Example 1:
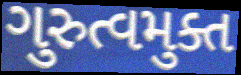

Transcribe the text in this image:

ગુરુત્વમુક્ત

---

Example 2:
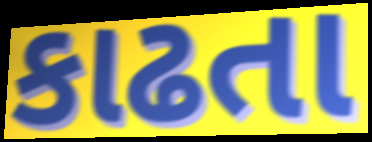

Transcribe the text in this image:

કાઢતા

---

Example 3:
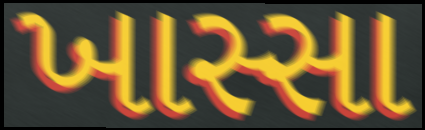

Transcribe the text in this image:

ખાસ્સા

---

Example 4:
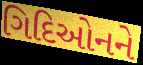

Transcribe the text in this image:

ગિદિઓનને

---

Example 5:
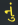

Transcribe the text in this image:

નું